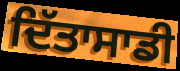
ਦਿੱਤਾਸਾਡੀ